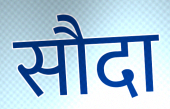
सौदा